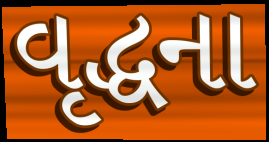
વૃદ્ધના